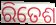
ରିତେଶ